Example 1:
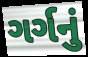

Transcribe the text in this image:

ગર્ગનું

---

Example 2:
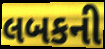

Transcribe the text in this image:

લબકની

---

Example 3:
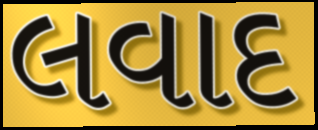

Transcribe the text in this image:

લવાદ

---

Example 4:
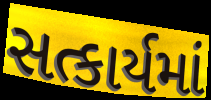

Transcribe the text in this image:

સત્કાર્યમાં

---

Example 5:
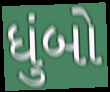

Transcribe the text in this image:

ધુંબો